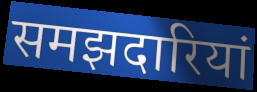
समझदारियां